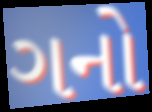
ગનો